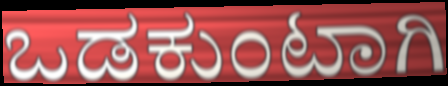
ಒಡಕುಂಟಾಗಿ